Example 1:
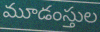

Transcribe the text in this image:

మూడంస్తుల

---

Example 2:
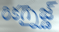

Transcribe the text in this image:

రికగ్నైజ్డ్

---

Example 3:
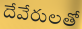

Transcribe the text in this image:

దేవేరులతో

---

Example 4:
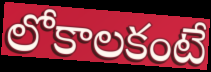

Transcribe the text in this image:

లోకాలకంటే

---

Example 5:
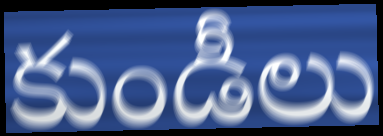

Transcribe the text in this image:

కుండీలు